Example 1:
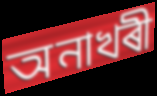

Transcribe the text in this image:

অনাখৰী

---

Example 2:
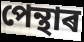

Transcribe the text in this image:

পেন্থাৰ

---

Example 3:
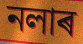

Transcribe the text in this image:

নলাৰ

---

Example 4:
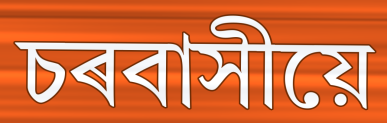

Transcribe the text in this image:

চৰবাসীয়ে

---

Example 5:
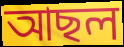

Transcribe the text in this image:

আছল